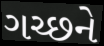
ગચ્છને